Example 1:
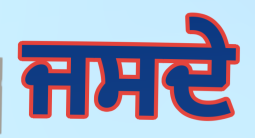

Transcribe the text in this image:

ਜਸਦੇ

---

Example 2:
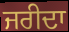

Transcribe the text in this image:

ਜਰੀਦਾ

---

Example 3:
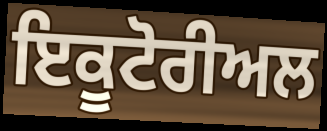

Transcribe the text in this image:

ਇਕੂਟੋਰੀਅਲ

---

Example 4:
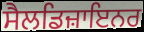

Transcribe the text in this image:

ਸੈਲਡਿਜ਼ਾਇਨਰ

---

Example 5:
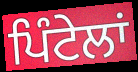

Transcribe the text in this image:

ਪਿੰਟੇਲਾਂ